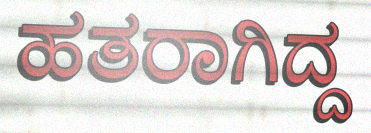
ಹತರಾಗಿದ್ದ